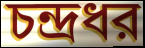
চন্দ্রধর